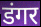
डंगर